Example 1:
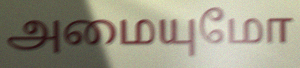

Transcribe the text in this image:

அமையுமோ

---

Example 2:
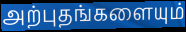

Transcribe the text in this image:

அற்புதங்களையும்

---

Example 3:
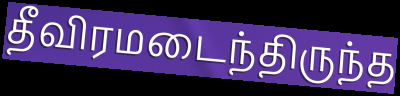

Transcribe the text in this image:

தீவிரமடைந்திருந்த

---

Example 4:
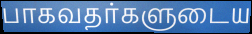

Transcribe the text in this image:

பாகவதர்களுடைய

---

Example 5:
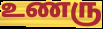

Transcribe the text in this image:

உணரு